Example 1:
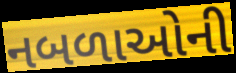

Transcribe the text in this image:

નબળાઓની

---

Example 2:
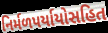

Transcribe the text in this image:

નિર્મળપર્યાયોસહિત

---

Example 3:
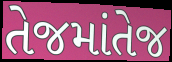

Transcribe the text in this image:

તેજમાંતેજ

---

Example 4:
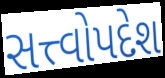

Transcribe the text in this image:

સત્ત્વોપદેશ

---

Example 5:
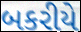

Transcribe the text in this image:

બકરીયે